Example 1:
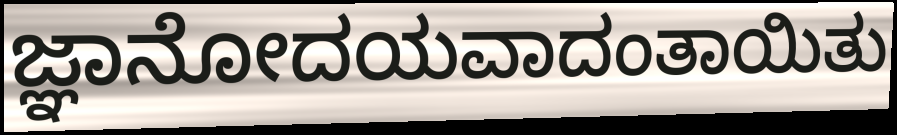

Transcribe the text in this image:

ಜ್ಞಾನೋದಯವಾದಂತಾಯಿತು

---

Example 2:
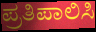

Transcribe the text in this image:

ಪ್ರತಿಪಾಲಿಸಿ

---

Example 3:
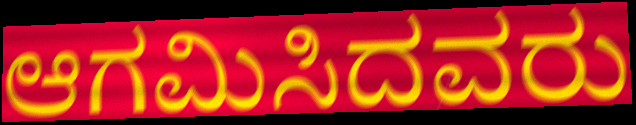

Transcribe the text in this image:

ಆಗಮಿಸಿದವರು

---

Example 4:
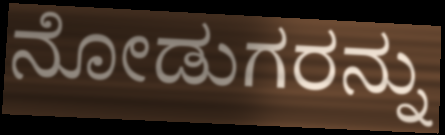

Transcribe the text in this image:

ನೋಡುಗರನ್ನು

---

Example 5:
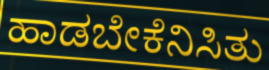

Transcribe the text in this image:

ಹಾಡಬೇಕೆನಿಸಿತು